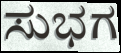
ಸುಭಗ